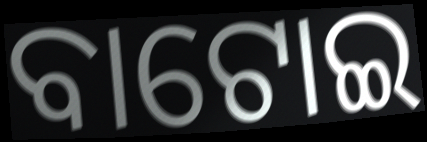
ବାଟୋଇ